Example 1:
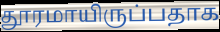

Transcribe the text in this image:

தூரமாயிருப்பதாக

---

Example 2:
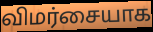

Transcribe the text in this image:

விமர்சையாக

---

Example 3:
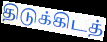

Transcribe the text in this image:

திடுக்கிடத்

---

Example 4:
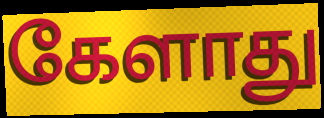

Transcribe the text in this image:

கேளாது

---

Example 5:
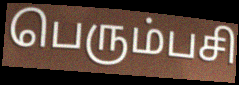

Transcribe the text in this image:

பெரும்பசி